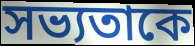
সভ্যতাকে